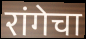
रांगेचा